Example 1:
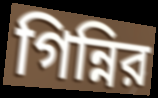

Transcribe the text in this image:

গিন্নির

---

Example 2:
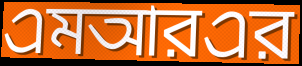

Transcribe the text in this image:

এমআরএর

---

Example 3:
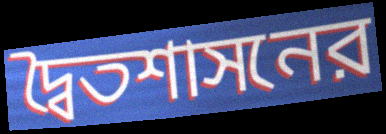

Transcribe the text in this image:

দ্বৈতশাসনের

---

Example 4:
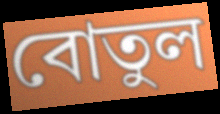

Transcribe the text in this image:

বোতুল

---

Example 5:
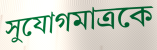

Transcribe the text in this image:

সুযোগমাত্রকে